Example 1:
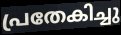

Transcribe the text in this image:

പ്രതേകിച്ചു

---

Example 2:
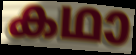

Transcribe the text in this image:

കഥാ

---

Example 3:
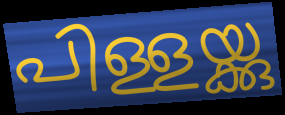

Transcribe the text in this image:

പിള്ളയ്ക്കു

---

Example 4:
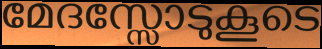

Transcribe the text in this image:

മേദസ്സോടുകൂടെ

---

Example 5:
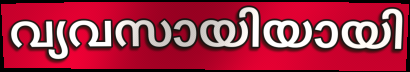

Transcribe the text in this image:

വ്യവസായിയായി